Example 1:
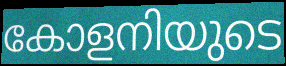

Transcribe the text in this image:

കോളനിയുടെ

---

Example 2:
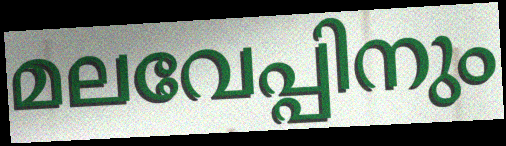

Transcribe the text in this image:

മലവേപ്പിനും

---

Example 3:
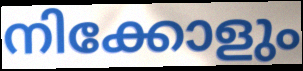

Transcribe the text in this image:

നിക്കോളും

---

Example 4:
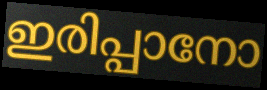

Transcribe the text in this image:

ഇരിപ്പാനോ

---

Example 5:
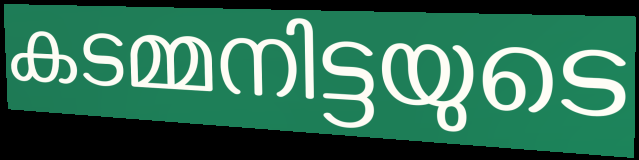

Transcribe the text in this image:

കടമ്മനിട്ടയുടെ